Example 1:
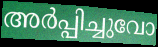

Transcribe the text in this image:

അർപ്പിച്ചുവോ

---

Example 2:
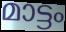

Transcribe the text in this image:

മാട്ടം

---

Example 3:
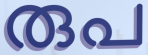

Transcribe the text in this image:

രുപ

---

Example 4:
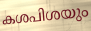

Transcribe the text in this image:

കശപിശയും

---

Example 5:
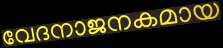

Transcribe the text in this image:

വേദനാജനകമായ